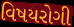
વિષયરોગી